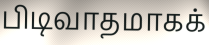
பிடிவாதமாகக்